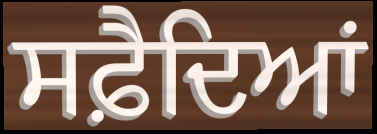
ਸਫ਼ੈਦਿਆਂ